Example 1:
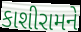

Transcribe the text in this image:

કાશીરામને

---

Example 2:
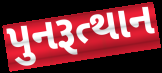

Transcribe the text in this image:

પુનરૂત્થાન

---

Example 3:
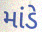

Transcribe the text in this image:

માંડે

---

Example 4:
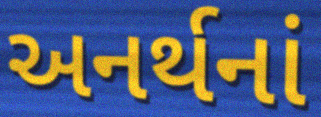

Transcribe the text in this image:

અનર્થનાં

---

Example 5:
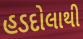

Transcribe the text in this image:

હડદોલાથી